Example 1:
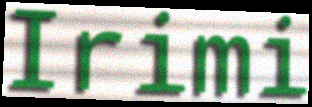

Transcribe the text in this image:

Irimi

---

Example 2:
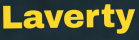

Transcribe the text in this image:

Laverty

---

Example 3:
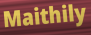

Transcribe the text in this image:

Maithily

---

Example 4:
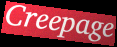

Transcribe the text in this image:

Creepage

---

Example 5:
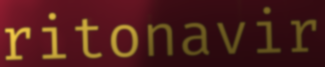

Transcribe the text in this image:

ritonavir